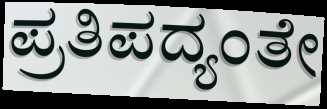
ಪ್ರತಿಪದ್ಯಂತೇ